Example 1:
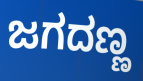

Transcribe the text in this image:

ಜಗದಣ್ಣ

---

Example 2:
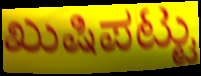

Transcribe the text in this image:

ಖುಷಿಪಟ್ಟು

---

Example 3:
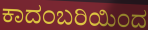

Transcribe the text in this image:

ಕಾದಂಬರಿಯಿಂದ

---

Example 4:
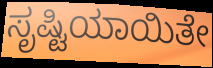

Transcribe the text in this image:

ಸೃಷ್ಟಿಯಾಯಿತೇ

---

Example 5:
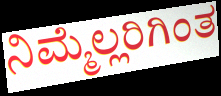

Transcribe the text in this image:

ನಿಮ್ಮೆಲ್ಲರಿಗಿಂತ